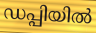
ഡപ്പിയിൽ